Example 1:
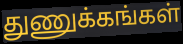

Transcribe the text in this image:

துணுக்கங்கள்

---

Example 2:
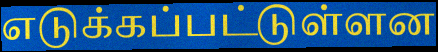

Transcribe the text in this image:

எடுக்கப்பட்டுள்ளன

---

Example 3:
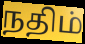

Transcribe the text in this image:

நதிம்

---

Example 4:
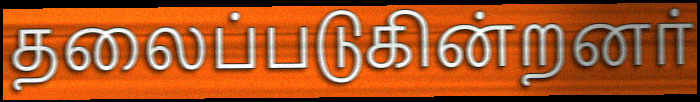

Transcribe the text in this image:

தலைப்படுகின்றனர்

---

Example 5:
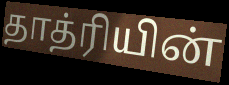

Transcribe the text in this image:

தாத்ரியின்